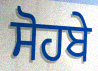
ਸੋਹਬੇ